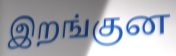
இறங்குன